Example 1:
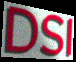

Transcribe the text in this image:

DSI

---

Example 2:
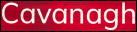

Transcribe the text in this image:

Cavanagh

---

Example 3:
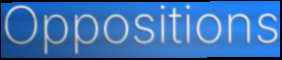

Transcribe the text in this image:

Oppositions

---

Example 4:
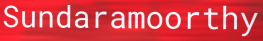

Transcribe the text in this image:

Sundaramoorthy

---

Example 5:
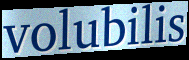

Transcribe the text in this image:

volubilis